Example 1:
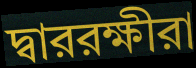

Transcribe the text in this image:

দ্বাররক্ষীরা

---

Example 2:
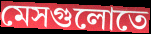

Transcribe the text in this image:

মেসগুলোতে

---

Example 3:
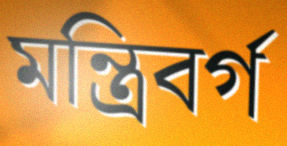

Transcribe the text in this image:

মন্ত্রিবর্গ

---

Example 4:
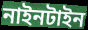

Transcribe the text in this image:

নাইনটাইন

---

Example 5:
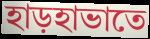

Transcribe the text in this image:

হাড়হাভাতে